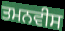
ਤਮਨਵੀਸ